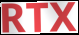
RTX